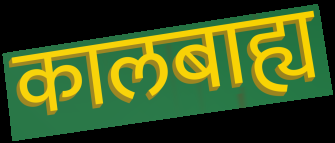
कालबाह्य